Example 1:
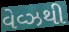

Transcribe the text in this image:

વેવ્ઝથી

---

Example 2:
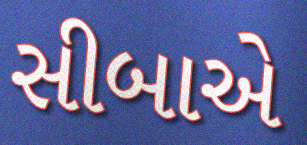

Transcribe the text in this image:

સીબાએ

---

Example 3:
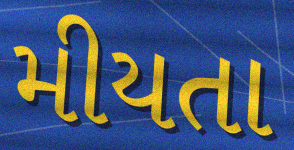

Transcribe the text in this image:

મીયતા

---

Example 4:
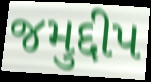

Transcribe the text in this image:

જમુદ્દીપ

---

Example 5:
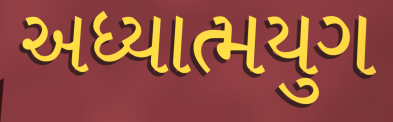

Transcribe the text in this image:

અધ્યાત્મયુગ